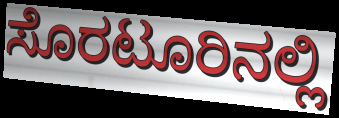
ಸೊರಟೂರಿನಲ್ಲಿ